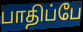
பாதிப்பே